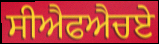
ਸੀਐਫਐਚਏ